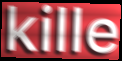
kille